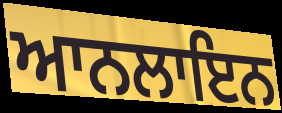
ਆਨਲਾਇਨ